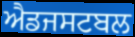
ਐਡਜਸਟਬਲ